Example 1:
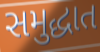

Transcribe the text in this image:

સમુદ્ધાત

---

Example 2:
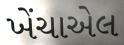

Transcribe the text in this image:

ખેંચાએલ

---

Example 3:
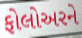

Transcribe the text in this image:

ફોલોઅરને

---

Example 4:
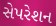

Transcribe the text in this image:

સેપરેશન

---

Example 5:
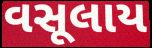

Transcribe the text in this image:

વસૂલાય